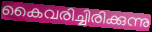
കൈവരിച്ചിരിക്കുന്നു